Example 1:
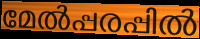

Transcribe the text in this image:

മേൽപ്പരപ്പിൽ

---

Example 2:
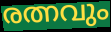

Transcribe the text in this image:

രത്നവും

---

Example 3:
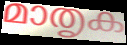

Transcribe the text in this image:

മാതൃക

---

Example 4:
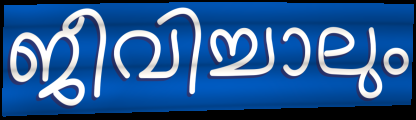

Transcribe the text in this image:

ജീവിച്ചാലും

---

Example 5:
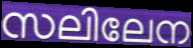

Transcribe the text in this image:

സലിലേന